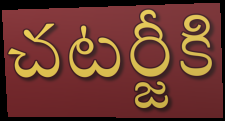
చటర్జీకి